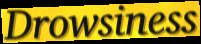
Drowsiness